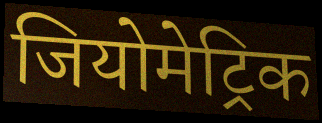
जियोमेट्रिक